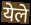
येले